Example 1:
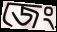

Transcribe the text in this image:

জেং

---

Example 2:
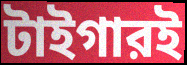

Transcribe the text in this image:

টাইগারই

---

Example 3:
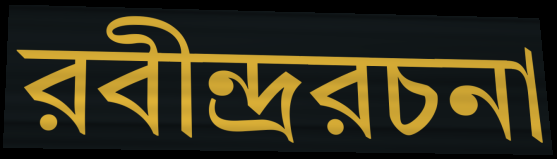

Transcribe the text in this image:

রবীন্দ্ররচনা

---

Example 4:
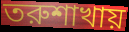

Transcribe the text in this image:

তরুশাখায়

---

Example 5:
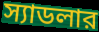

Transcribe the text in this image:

স্যাডলার